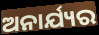
ଅନାର୍ଯ୍ୟର